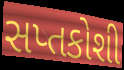
સપ્તકોશી